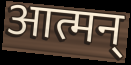
आत्मन्